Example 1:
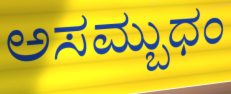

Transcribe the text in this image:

ಅಸಮ್ಬುಧಂ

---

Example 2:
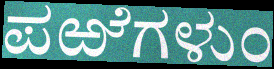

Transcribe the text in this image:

ಪಱೆಗಳುಂ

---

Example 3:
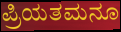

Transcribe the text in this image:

ಪ್ರಿಯತಮನೂ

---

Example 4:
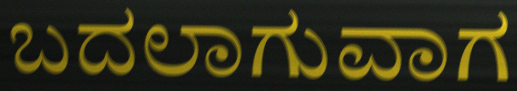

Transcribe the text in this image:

ಬದಲಾಗುವಾಗ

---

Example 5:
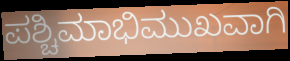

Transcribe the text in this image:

ಪಶ್ಚಿಮಾಭಿಮುಖವಾಗಿ